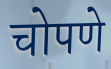
चोपणे